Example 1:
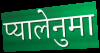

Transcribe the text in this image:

प्यालेनुमा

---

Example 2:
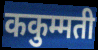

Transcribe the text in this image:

ककुम्मती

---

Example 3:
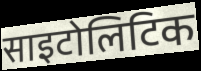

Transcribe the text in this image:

साइटोलिटिक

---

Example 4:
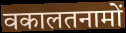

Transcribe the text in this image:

वकालतनामों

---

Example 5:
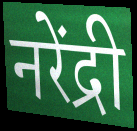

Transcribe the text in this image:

नरेंद्री